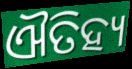
ଐତିହ୍ୟ